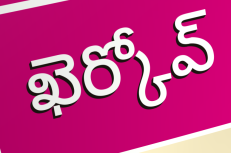
ఖెర్కోవ్